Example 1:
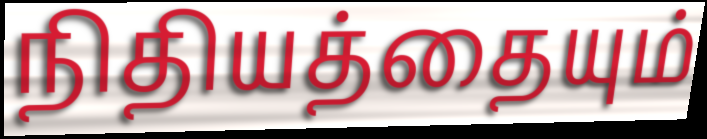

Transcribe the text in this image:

நிதியத்தையும்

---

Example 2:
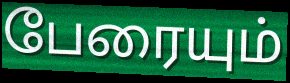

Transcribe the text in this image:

பேரையும்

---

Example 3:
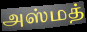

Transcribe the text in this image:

அஸ்மத்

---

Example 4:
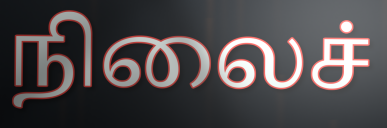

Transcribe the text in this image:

நிலைச்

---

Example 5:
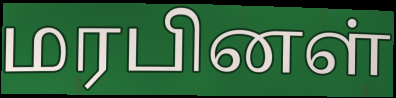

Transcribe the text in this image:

மரபினள்